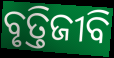
ବୃତ୍ତିଜୀବି